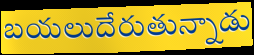
బయలుదేరుతున్నాడు